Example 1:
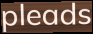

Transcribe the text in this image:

pleads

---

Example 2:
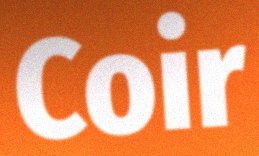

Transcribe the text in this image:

Coir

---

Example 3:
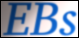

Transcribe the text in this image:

EBs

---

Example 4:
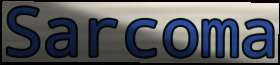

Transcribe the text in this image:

Sarcoma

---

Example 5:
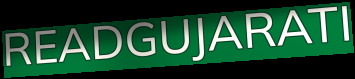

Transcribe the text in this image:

READGUJARATI